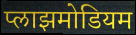
प्लाझमोडियम